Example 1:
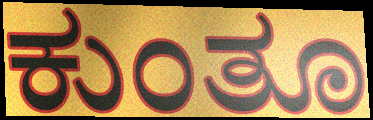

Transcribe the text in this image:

ಕುಂತೂ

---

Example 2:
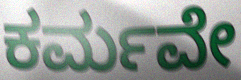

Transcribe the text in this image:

ಕರ್ಮವೇ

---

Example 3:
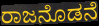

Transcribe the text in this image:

ರಾಜನೊಡನೆ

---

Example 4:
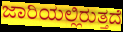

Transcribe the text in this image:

ಜಾರಿಯಲ್ಲಿರುತ್ತದೆ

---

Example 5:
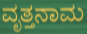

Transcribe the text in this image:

ವೃತ್ತನಾಮ